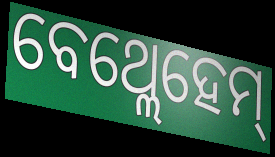
ବେଥ୍ଲେହେମ୍